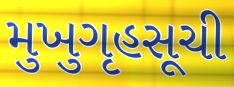
મુખુગૃહસૂચી